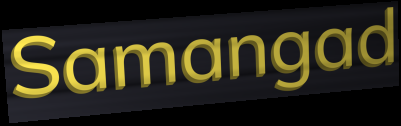
Samangad